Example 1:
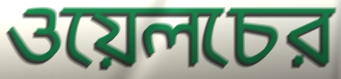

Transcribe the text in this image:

ওয়েলচের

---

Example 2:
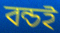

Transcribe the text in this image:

বন্ডই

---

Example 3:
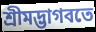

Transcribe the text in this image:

শ্রীমদ্ভাগবতে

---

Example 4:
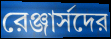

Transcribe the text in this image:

রেঞ্জার্সদের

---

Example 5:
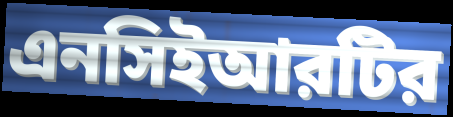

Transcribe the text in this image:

এনসিইআরটির